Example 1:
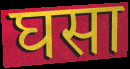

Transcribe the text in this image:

घसा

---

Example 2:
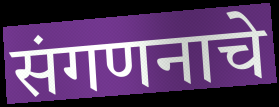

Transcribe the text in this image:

संगणनाचे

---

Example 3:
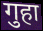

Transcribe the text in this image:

गुहा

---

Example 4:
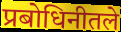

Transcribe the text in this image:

प्रबोधिनीतले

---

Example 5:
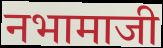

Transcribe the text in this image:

नभामाजी